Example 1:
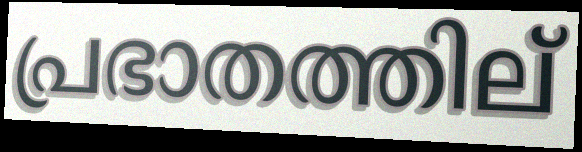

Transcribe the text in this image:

പ്രഭാതത്തില്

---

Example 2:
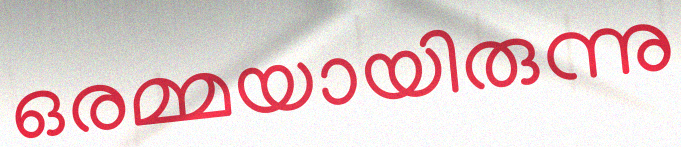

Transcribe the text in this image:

ഒരമ്മയായിരുന്നു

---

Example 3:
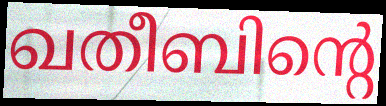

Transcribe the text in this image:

ഖതീബിന്റെ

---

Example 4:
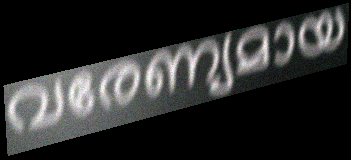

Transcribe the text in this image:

വരേണ്യമായ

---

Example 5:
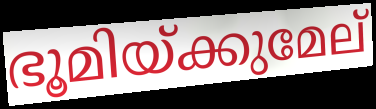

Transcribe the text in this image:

ഭൂമിയ്ക്കുമേല്